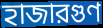
হাজারগুণ